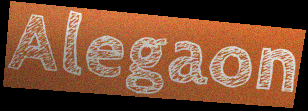
Alegaon